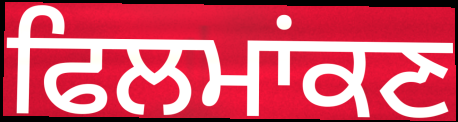
ਫਿਲਮਾਂਕਣ